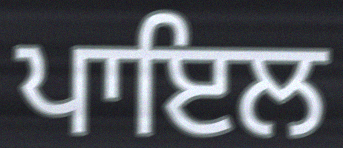
ਪਾਇਲ